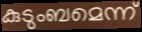
കുടുംബമെന്ന്